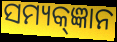
ସମ୍ୟକ୍‌ଜ୍ଞାନ